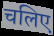
चलिए